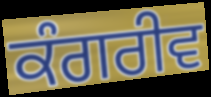
ਕੰਗਰੀਵ